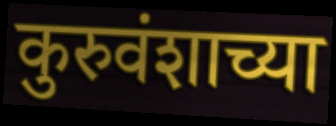
कुरुवंशाच्या